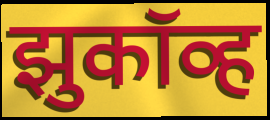
झुकॉव्ह